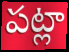
పట్లా